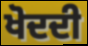
ਖੋਦਦੀ